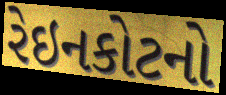
રેઇનકોટનો